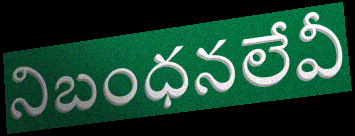
నిబంధనలేవీ